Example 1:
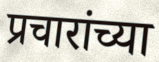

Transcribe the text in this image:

प्रचारांच्या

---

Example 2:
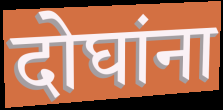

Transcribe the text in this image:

दोघांना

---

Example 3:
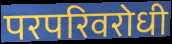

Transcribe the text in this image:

परपरिवरोधी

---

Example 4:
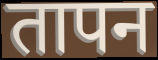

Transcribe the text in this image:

तापन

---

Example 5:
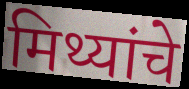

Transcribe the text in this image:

मिथ्यांचे